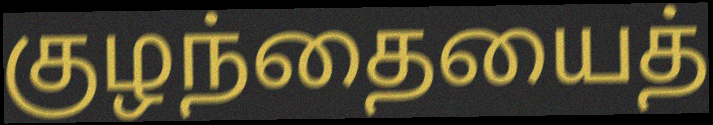
குழந்தையைத்